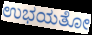
ಉಭಯತೋ